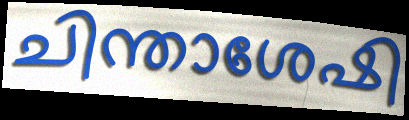
ചിന്താശേഷി